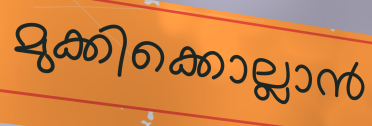
മുക്കിക്കൊല്ലാൻ